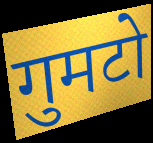
गुमटो